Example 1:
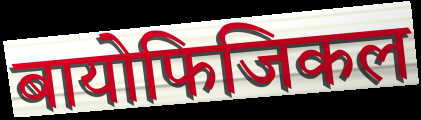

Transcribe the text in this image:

बायोफिजिकल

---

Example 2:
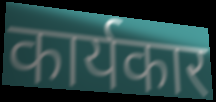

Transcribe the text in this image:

कार्यकार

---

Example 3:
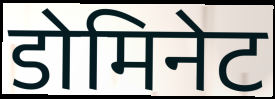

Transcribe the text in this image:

डोमिनेट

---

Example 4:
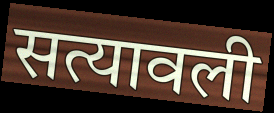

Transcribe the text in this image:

सत्यावली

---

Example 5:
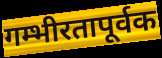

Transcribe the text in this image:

गम्भीरतापूर्वक